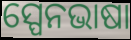
ସ୍ପେନଭାଷା